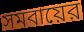
সমবায়ের